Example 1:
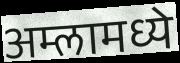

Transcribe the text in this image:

अम्लामध्ये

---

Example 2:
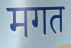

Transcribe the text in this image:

मगत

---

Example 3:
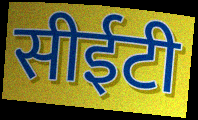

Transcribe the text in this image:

सीईटी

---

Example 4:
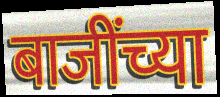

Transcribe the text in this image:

बाजींच्या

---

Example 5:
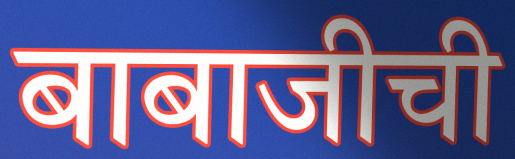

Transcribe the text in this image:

बाबाजीची